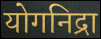
योगनिद्रा